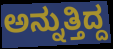
ಅನ್ನುತ್ತಿದ್ದ